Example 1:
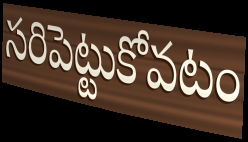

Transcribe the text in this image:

సరిపెట్టుకోవటం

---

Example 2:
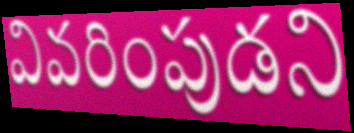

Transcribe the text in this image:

వివరింపుడని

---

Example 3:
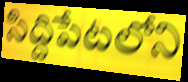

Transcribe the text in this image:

సిద్దిపేటలోని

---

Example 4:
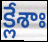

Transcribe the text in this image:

క్లేశాః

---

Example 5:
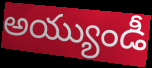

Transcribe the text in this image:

అయ్యుండీ